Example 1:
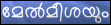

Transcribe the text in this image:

മേൽമീശയും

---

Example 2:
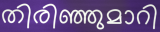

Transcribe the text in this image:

തിരിഞ്ഞുമാറി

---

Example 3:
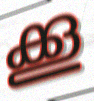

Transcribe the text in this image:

ക്കൂ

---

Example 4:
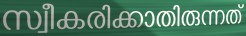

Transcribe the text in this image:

സ്വീകരിക്കാതിരുന്നത്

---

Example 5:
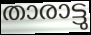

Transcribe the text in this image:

താരാട്ടു